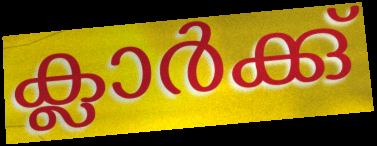
ക്ലാർക്കു്